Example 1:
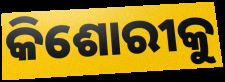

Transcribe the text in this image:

କିଶୋରୀକୁ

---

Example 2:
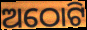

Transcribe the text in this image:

ଅଠୋଟି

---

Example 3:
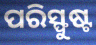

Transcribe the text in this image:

ପରିସ୍ଫୁଷ୍ଟ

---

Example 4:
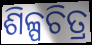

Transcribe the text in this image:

ଶିଳ୍ପଚିତ୍ର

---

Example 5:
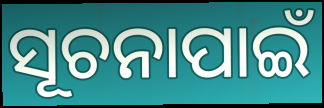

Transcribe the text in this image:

ସୂଚନାପାଇଁ